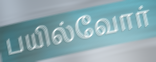
பயில்வோர்